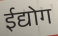
ईद्योग